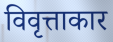
विवृत्ताकार